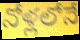
నోళ్లలోనే